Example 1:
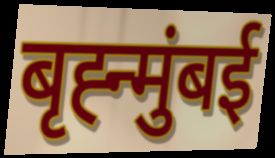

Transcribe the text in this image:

बृह्न्मुंबई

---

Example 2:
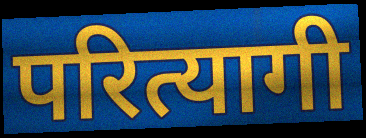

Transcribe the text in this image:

परित्यागी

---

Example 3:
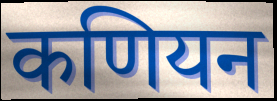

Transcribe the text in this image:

कणियन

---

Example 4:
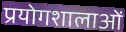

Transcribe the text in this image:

प्रयोगशालाओं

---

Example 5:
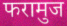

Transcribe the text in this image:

फरामुज